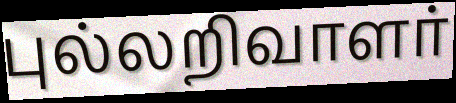
புல்லறிவாளர்